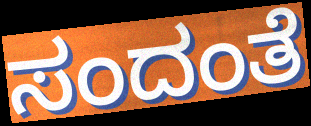
ಸಂದಂತೆ